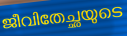
ജീവിതേച്ഛയുടെ